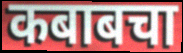
कबाबचा